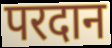
परदान